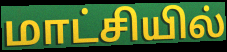
மாட்சியில்